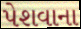
પેશવાના